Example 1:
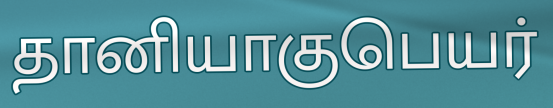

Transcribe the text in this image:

தானியாகுபெயர்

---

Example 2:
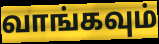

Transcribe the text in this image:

வாங்கவும்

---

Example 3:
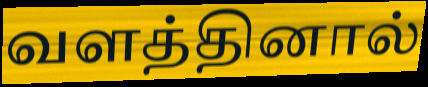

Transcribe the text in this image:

வளத்தினால்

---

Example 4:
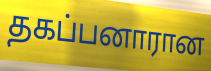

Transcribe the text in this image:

தகப்பனாரான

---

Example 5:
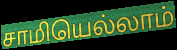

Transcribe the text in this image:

சாமியெல்லாம்